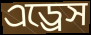
এড্রেস